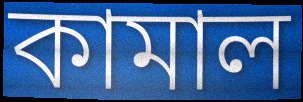
কামাল